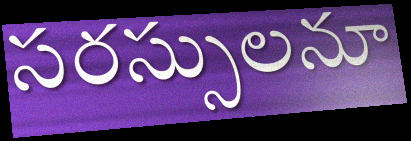
సరస్సులనూ